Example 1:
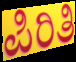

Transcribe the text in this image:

ಪಿರಿತಿ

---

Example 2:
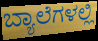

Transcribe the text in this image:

ಬ್ಯಾಲೆಗಳಲ್ಲಿ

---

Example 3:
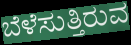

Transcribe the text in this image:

ಬೆಳೆಸುತ್ತಿರುವ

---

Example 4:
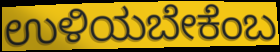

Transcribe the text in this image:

ಉಳಿಯಬೇಕೆಂಬ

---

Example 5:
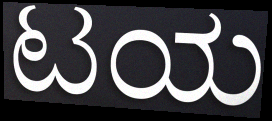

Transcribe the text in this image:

ಟಯ